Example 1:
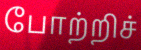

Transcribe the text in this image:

போற்றிச்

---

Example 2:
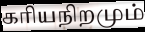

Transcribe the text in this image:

கரியநிறமும்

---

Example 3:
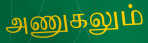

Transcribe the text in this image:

அணுகலும்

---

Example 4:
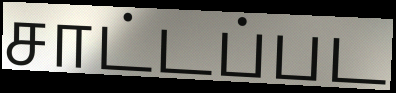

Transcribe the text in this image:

சாட்டப்பட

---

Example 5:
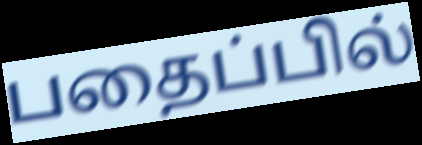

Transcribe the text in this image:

பதைப்பில்